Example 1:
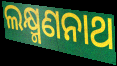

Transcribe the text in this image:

ଲକ୍ଷ୍ମଣନାଥ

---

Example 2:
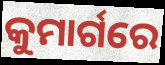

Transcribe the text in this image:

କୁମାର୍ଗରେ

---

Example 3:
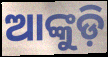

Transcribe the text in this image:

ଆଙ୍କୁଡ଼ି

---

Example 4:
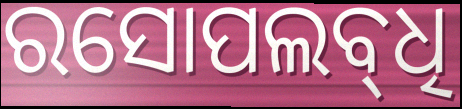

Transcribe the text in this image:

ରସୋପଲବ୍‌ଧି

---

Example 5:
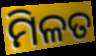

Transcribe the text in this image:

ମିଳତ